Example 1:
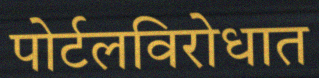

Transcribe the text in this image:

पोर्टलविरोधात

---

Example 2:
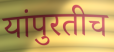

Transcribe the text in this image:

यांपुरतीच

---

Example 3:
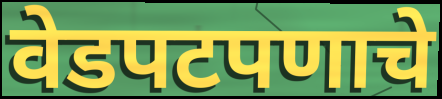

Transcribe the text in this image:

वेडपटपणाचे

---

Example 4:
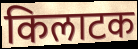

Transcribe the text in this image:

किलाटक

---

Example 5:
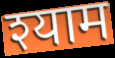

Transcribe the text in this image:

श्याम